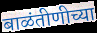
बाळंतीणीच्या